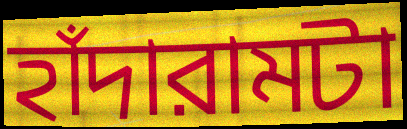
হাঁদারামটা